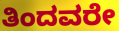
ತಿಂದವರೇ